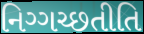
નિગ્ગચ્છતીતિ